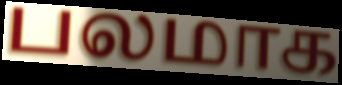
பலமாக